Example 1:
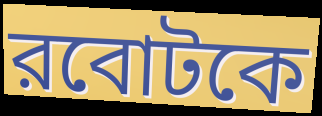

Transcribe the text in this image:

রবোটকে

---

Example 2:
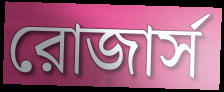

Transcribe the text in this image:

রোজার্স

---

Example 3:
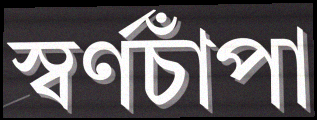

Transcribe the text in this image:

স্বর্ণচাঁপা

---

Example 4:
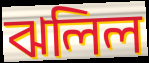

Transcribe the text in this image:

ঝলিল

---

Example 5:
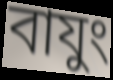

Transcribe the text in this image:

বাযুং